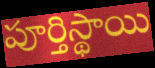
పూర్తిస్థాయి